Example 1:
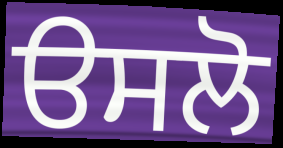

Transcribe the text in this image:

ੳਸਲੋ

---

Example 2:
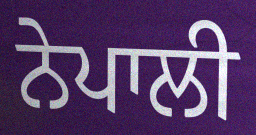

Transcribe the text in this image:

ਨੇਪਾਲੀ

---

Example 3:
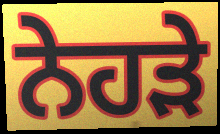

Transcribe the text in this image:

ਨੇਹੜੇ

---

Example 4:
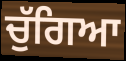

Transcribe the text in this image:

ਚੁੱਗਿਆ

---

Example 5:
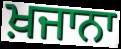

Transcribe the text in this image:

ਖ਼ਜਾਨਾ